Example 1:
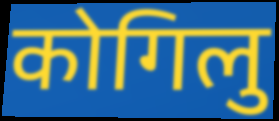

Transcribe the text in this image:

कोगिलु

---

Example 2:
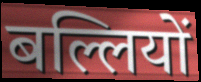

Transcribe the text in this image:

बल्लियों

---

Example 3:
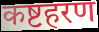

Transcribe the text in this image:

कष्टहरण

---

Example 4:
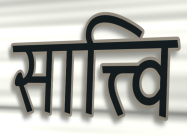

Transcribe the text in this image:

सात्त्वि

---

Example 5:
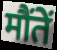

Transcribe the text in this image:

मौंतें